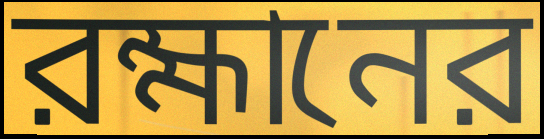
রহ্মানের